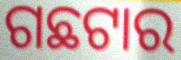
ଗଛଟାର